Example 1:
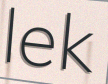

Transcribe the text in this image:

lek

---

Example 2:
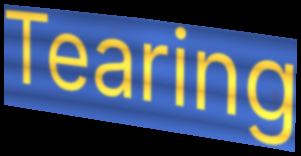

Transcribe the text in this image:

Tearing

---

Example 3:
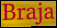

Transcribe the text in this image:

Braja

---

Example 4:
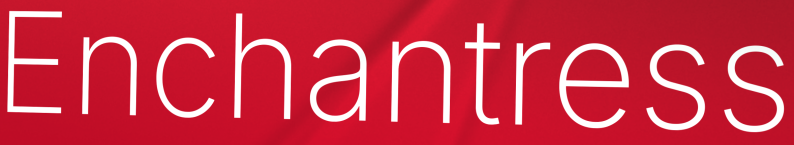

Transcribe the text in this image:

Enchantress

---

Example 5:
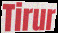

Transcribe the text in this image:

Tirur